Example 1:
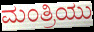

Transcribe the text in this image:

ಮಂತ್ರಿಯು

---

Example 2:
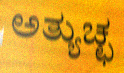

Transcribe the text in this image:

ಅತ್ಯುಚ್ಛ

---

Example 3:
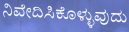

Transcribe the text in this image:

ನಿವೇದಿಸಿಕೊಳ್ಳುವುದು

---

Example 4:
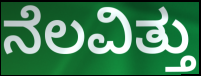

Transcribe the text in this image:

ನೆಲವಿತ್ತು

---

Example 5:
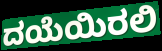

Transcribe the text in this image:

ದಯೆಯಿರಲಿ